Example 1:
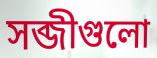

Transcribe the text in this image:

সব্জীগুলো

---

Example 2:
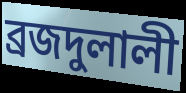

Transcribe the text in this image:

ব্রজদুলালী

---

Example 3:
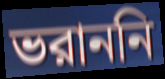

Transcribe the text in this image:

ভরাননি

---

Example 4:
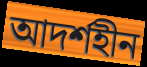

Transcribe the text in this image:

আদর্শহীন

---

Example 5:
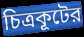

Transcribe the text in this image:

চিত্রকূটের